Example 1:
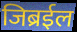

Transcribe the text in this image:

जिब्रईल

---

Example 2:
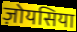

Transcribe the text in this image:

ज़ोयसिया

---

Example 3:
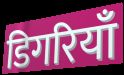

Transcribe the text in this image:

डिगरियाँ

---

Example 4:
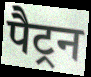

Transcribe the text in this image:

पैट्रन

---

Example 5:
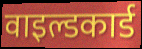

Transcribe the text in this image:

वाइल्डकार्ड